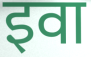
इवा